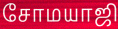
சோமயாஜி